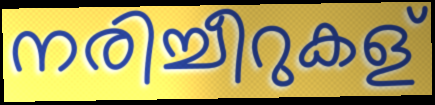
നരിച്ചീറുകള്